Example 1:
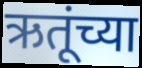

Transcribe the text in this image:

ऋतूंच्या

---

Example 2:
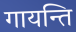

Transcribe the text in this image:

गायन्ति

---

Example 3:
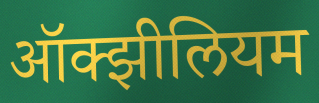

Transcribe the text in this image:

ऑक्झीलियम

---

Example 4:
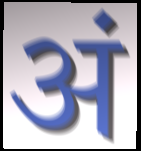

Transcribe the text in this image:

अं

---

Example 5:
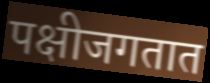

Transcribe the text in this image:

पक्षीजगतात